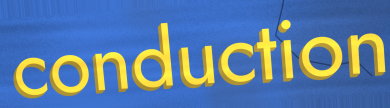
conduction